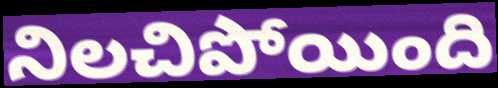
నిలచిపోయింది